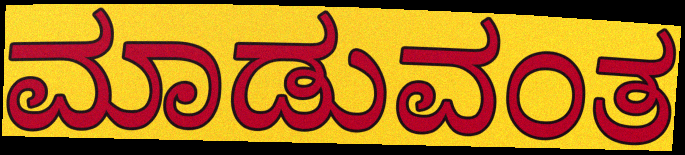
ಮಾಡುವಂತ